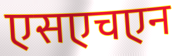
एसएचएन